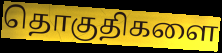
தொகுதிகளை